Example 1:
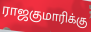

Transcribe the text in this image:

ராஜகுமாரிக்கு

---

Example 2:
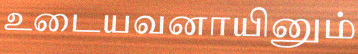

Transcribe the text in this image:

உடையவனாயினும்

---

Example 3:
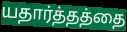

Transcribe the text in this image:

யதார்த்தத்தை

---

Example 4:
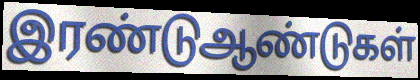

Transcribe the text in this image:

இரண்டுஆண்டுகள்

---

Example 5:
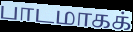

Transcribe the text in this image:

பாடமாகக்